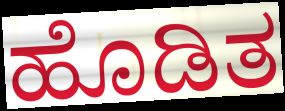
ಹೊಡಿತ